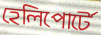
হেলিপোর্টে